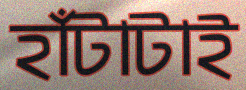
হাঁটাটাই